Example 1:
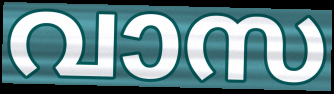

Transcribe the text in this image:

വാസ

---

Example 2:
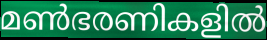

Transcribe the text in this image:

മൺഭരണികളിൽ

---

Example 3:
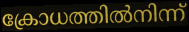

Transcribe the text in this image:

ക്രോധത്തിൽനിന്ന്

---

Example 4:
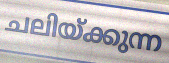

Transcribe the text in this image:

ചലിയ്ക്കുന്ന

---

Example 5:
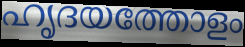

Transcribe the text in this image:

ഹൃദയത്തോളം